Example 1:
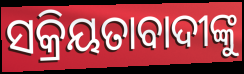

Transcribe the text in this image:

ସକ୍ରିୟତାବାଦୀଙ୍କୁ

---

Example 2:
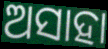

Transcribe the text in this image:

ଅସାହା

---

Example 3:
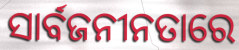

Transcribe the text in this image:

ସାର୍ବଜନୀନତାରେ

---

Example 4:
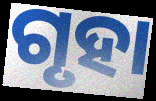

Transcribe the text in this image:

ଗୃହା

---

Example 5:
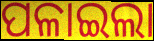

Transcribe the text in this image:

ପଳାଇଲା